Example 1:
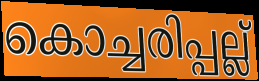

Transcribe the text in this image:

കൊച്ചരിപ്പല്ല്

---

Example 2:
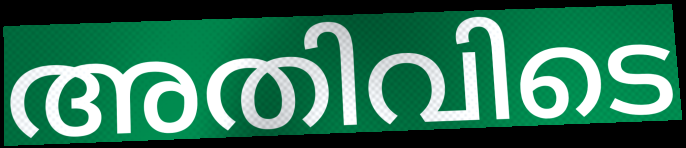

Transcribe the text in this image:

അതിവിടെ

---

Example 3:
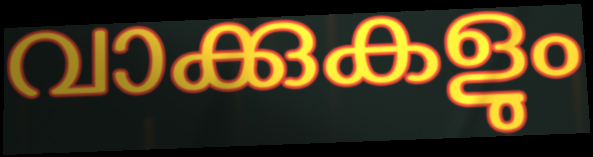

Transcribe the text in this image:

വാക്കുകളും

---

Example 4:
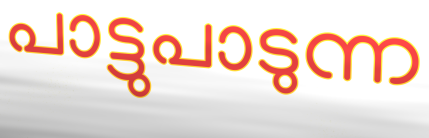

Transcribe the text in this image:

പാട്ടുപാടുന്ന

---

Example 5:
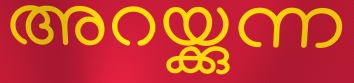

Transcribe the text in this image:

അറയ്ക്കുന്ന